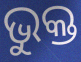
ଭୁକ୍ତ